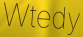
Wtedy